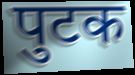
पुटक